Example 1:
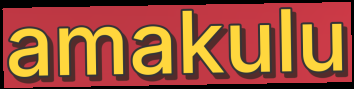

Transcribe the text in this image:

amakulu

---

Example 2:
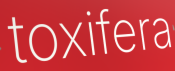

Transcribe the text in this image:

toxifera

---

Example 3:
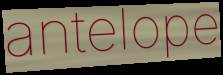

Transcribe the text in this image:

antelope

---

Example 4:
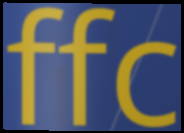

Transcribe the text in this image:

ffc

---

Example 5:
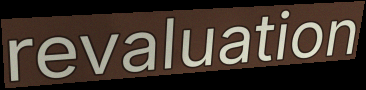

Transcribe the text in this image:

revaluation